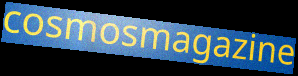
cosmosmagazine